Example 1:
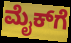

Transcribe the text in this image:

ಮೈಕ್‌ಗೆ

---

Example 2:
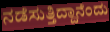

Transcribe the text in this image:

ನಡೆಸುತ್ತಿದ್ದಾನೆಂದು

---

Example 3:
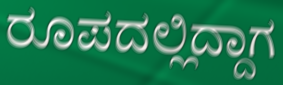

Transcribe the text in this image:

ರೂಪದಲ್ಲಿದ್ದಾಗ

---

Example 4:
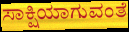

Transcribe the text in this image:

ಸಾಕ್ಷಿಯಾಗುವಂತೆ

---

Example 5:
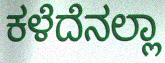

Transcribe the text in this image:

ಕಳೆದೆನಲ್ಲಾ